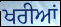
ਖਰੀਆਂ